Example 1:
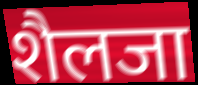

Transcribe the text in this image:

शैलजा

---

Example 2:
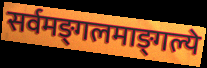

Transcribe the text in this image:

सर्वमङ्गलमाङ्गल्ये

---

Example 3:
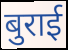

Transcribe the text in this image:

बुराई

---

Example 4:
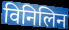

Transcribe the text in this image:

विनिलिन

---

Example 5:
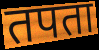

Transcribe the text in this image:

तपता